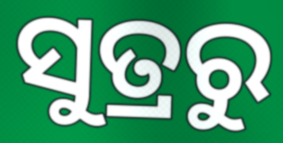
ସୁତ୍ରରୁ